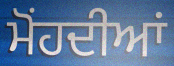
ਮੋਂਹਦੀਆਂ